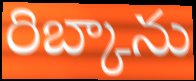
రిబ్కాను